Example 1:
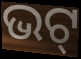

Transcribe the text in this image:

ଭଟ୍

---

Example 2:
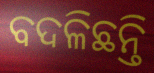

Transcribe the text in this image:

ବଦଳିଛନ୍ତି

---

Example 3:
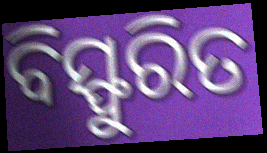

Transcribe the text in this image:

ବିସ୍ଫୁରିତ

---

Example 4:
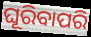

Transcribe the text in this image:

ଘୂରିବାପରି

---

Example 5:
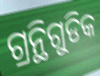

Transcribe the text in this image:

ଗ୍ରନ୍ଥିଗୁଡିକ